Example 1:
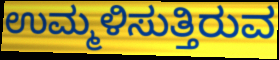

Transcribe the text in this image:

ಉಮ್ಮಳಿಸುತ್ತಿರುವ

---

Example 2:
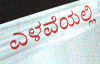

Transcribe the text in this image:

ಎಳವೆಯಲ್ಲಿ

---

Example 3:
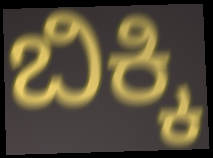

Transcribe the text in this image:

ಬಿಕ್ಕಿ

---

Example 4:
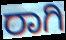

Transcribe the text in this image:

ರಾಗಿ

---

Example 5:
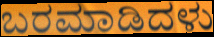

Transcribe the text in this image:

ಬರಮಾಡಿದಳು